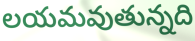
లయమవుతున్నది